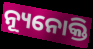
ନ୍ୟୂନୋକ୍ତି